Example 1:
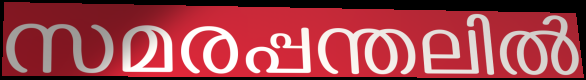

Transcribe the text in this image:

സമരപ്പന്തലിൽ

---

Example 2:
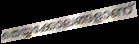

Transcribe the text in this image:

തെയ്യക്കോലങ്ങളാണ്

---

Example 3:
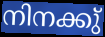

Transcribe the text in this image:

നിനക്കു്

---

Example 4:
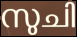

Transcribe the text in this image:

സുചി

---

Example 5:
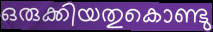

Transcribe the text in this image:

ഒരുക്കിയതുകൊണ്ടു